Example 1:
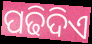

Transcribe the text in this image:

ପଢିଦିଏ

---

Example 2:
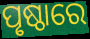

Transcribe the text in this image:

ପୃଷ୍ଠାରେ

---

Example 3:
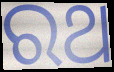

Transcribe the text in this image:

ରଥ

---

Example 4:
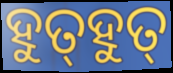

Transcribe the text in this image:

ହୁତ୍‌ହୁତ୍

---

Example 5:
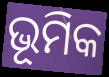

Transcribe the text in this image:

ଭୂମିକ